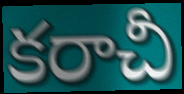
కరాచీ